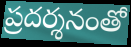
ప్రదర్శనంతో